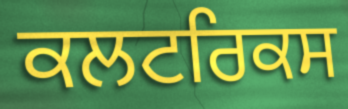
ਕਲਟਰਿਕਸ